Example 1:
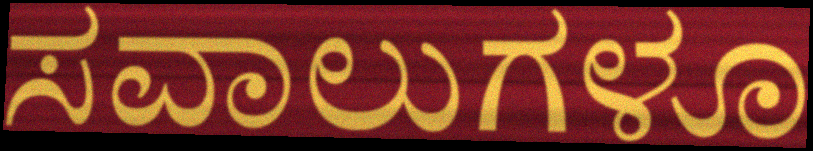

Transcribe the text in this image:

ಸವಾಲುಗಳೂ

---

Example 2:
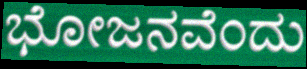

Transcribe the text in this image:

ಭೋಜನವೆಂದು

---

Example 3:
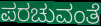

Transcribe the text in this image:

ಪರಚುವಂತೆ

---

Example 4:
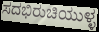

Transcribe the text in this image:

ಸದಭಿರುಚಿಯುಳ್ಳ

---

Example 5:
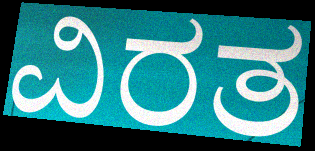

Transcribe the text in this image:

ವಿರತ